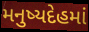
મનુષ્યદેહમાં